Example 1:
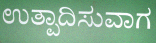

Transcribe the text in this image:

ಉತ್ಪಾದಿಸುವಾಗ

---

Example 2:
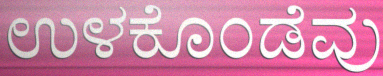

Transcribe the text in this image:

ಉಳಕೊಂಡೆವು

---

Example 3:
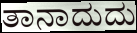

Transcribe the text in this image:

ತಾನಾದುದು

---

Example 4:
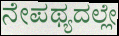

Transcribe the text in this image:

ನೇಪಥ್ಯದಲ್ಲೇ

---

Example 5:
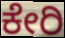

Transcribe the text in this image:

ಕೇರಿ